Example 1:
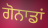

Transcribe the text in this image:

ਗੋਨਾਡਾਂ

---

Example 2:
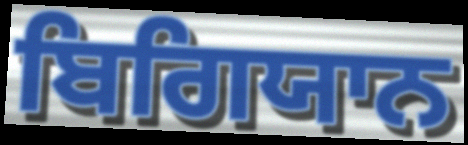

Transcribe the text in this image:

ਬਿਗਿਯਾਨ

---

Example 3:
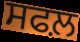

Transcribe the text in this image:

ਸਫਲ਼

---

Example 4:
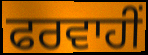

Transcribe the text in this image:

ਫਰਵਾਹੀਂ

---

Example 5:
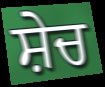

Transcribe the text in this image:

ਸ਼ੇਚ